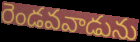
రెండవవాడును